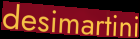
desimartini